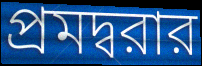
প্রমদ্বরার